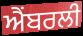
ਐਂਬਰਲੀ